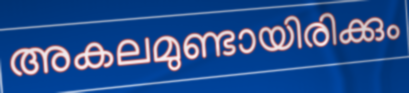
അകലമുണ്ടായിരിക്കും